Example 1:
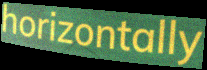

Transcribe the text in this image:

horizontally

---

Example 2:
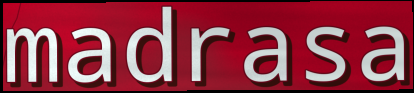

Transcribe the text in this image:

madrasa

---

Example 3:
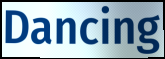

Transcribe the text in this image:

Dancing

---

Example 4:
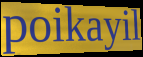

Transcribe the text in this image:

poikayil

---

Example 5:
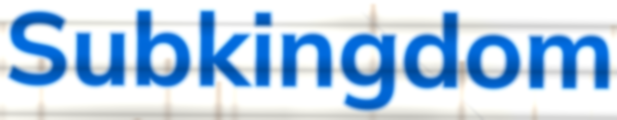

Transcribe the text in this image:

Subkingdom